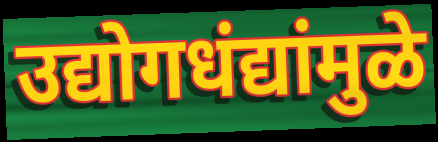
उद्योगधंद्यांमुळे